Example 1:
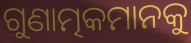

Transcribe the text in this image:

ଗୁଣାତ୍ମକମାନକୁ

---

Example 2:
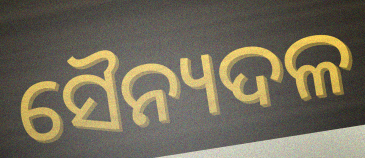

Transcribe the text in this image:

ସୈନ୍ୟଦଳ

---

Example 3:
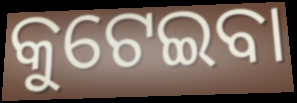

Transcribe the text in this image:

କୁଟେଇବା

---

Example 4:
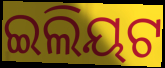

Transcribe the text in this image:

ଇଲିୟଟ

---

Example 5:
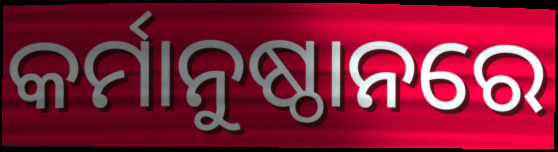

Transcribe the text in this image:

କର୍ମାନୁଷ୍ଠାନରେ